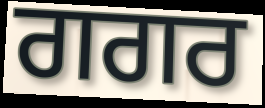
ਗਗਰ